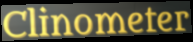
Clinometer